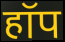
हॉप